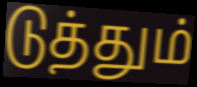
டுத்தும்